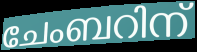
ചേംബറിന്